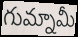
గుమ్నామీ